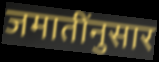
जमातींनुसार